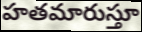
హతమారుస్తూ